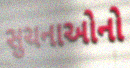
સુચનાઓનો